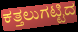
ಕತ್ತಲುಗಟ್ಟಿದ